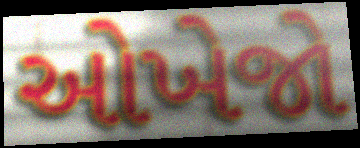
ઓખેજો